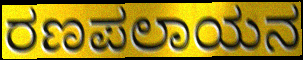
ರಣಪಲಾಯನ